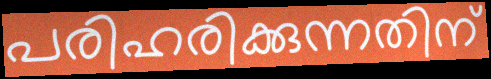
പരിഹരിക്കുന്നതിന്